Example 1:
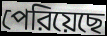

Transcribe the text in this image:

পেরিয়েছে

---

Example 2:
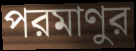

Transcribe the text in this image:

পরমাণুর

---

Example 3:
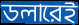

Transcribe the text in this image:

ডলারেই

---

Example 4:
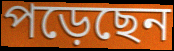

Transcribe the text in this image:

পড়েছেন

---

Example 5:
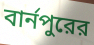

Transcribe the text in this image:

বার্নপুরের